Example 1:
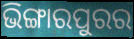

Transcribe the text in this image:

ଭିଙ୍ଗାରପୁରର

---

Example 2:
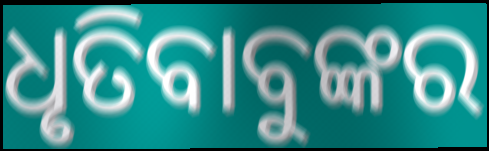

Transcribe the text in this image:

ଧୃତିବାବୁଙ୍କର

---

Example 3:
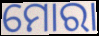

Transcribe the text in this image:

ମୋରା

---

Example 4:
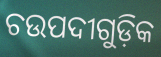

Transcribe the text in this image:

ଚଉପଦୀଗୁଡ଼ିକ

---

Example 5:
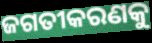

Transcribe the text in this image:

ଜଗତୀକରଣକୁ